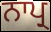
ਨਾਪ੍ਰ